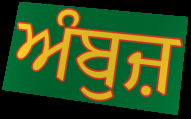
ਅੰਬੁਜ਼